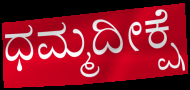
ಧಮ್ಮದೀಕ್ಷೆ